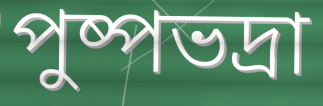
পুষ্পভদ্রা